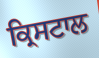
ਕ੍ਰਿਸਟਾਲ